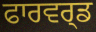
ਫਾਰਵਰ੍ਡ